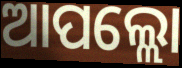
ଆପଲ୍ଲୋ